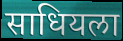
साधियला